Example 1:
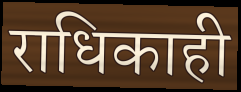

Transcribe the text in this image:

राधिकाही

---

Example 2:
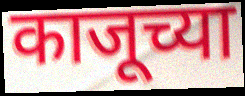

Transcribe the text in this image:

काजूच्या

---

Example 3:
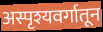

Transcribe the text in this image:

अस्पृश्यवर्गातून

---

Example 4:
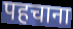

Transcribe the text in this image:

पहचाना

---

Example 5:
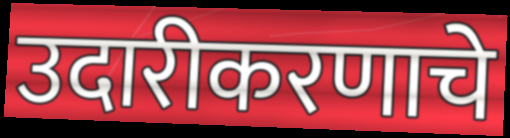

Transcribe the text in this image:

उदारीकरणाचे